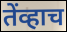
तेंव्हाच